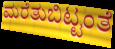
ಮರೆತುಬಿಟ್ಟಂತೆ